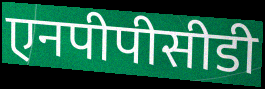
एनपीपीसीडी